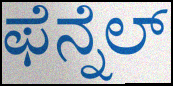
ಫೆನ್ನೆಲ್